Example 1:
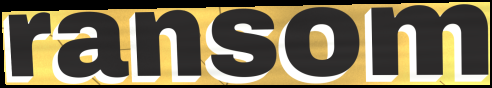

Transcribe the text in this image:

ransom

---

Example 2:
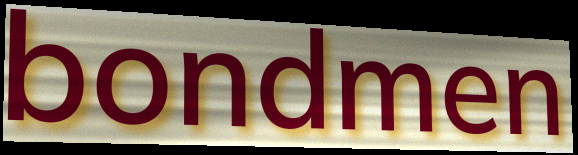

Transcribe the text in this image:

bondmen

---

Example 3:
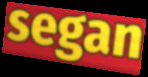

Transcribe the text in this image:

segan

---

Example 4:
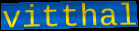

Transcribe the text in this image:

vitthal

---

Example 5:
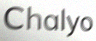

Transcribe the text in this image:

Chalyo